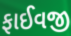
ફાઈવજી